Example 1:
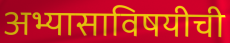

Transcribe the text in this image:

अभ्यासाविषयीची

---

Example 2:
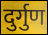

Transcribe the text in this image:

दुर्गुण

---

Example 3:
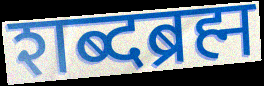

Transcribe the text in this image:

शब्दब्रह्म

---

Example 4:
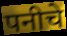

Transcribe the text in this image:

पनीचे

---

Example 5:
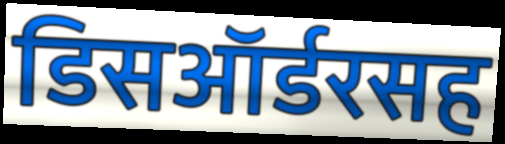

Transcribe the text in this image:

डिसऑर्डरसह